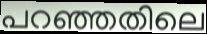
പറഞ്ഞതിലെ